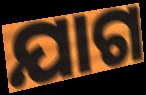
ଯାଗ